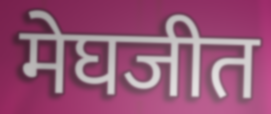
मेघजीत